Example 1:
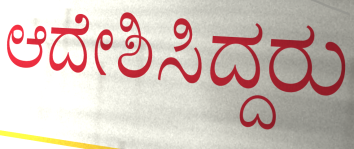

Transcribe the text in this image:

ಆದೇಶಿಸಿದ್ದರು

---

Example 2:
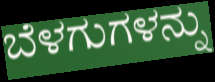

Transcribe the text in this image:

ಬೆಳಗುಗಳನ್ನು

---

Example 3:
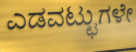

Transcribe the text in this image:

ಎಡವಟ್ಟುಗಳೇ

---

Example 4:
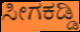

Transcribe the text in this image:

ಸೀಗಕಡ್ಡಿ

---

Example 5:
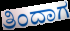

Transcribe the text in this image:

ತಿಂದಾಗ